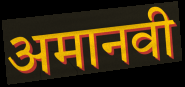
अमानवी